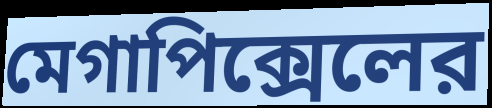
মেগাপিক্সেলের